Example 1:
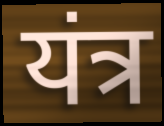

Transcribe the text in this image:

यंत्र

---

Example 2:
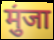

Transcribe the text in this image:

मुंजा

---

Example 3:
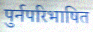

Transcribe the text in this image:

पुर्नपरिभाषित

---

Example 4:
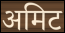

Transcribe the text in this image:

अमिट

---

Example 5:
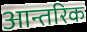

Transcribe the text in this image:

आन्तरिक